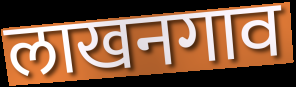
लाखनगाव